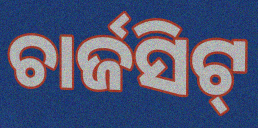
ଚାର୍ଜସିଟ୍